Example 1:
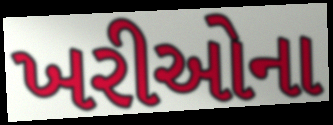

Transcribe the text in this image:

ખરીઓના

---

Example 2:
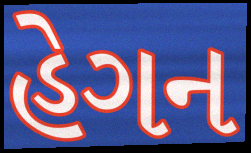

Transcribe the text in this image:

હેગન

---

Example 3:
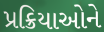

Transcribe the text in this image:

પ્રક્રિયાઓને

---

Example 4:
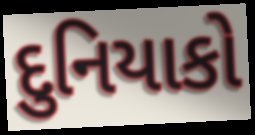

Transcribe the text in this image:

દુનિયાકો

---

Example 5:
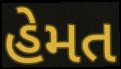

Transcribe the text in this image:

હેમત